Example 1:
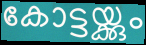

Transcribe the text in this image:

കോട്ടയ്ക്കും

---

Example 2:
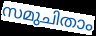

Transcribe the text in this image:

സമുചിതാം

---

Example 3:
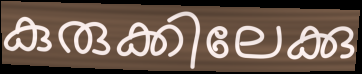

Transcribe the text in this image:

കുരുക്കിലേക്കു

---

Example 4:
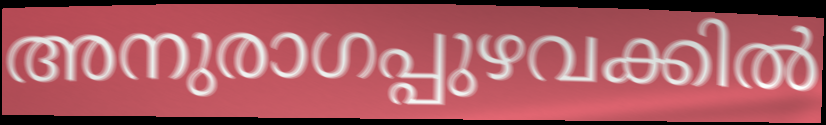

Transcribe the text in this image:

അനുരാഗപ്പുഴവക്കിൽ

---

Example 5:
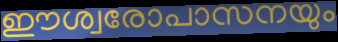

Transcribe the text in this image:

ഈശ്വരോപാസനയും